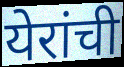
येरांची